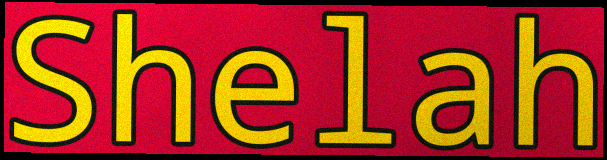
Shelah